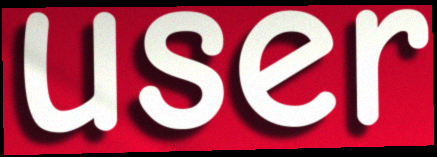
user